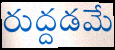
రుద్దడమే